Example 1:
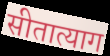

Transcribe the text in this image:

सीतात्याग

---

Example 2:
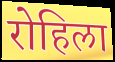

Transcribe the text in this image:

रोहिला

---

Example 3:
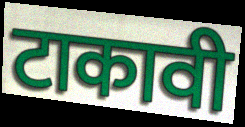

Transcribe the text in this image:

टाकावी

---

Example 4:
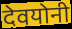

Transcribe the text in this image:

देवयोनी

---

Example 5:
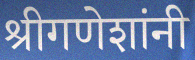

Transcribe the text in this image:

श्रीगणेशांनी